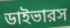
ডাইভারস